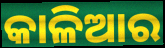
କାଳିଆର